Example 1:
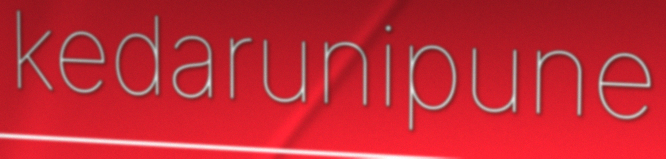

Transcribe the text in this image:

kedarunipune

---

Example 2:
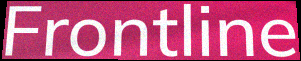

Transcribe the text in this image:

Frontline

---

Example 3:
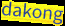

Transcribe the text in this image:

dakong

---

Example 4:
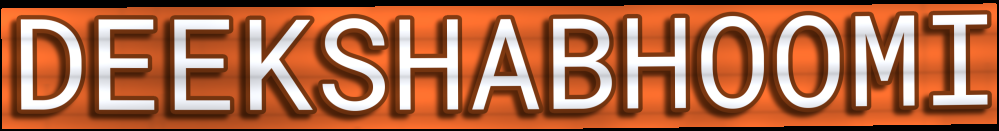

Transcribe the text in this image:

DEEKSHABHOOMI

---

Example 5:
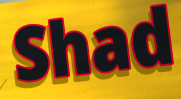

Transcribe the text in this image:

Shad